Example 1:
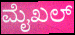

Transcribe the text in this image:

ಮೈಖಲ್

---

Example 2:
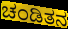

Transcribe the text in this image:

ಚಂಡಿತನ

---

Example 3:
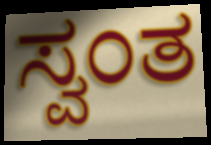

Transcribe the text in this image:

ಸ್ವಂತ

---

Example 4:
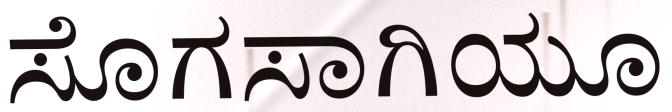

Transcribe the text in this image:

ಸೊಗಸಾಗಿಯೂ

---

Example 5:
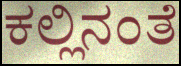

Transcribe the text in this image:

ಕಲ್ಲಿನಂತೆ